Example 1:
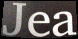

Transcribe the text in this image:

Jea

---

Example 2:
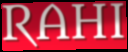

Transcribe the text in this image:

RAHI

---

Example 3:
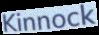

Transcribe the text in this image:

Kinnock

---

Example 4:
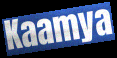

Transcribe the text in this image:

Kaamya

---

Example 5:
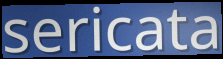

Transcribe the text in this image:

sericata